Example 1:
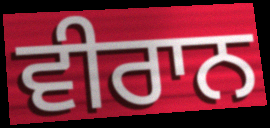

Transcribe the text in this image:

ਵੀਰਾਨ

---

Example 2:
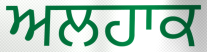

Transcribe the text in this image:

ਅਲਹਾਕ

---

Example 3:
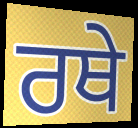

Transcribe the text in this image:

ਰਥੇ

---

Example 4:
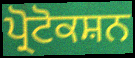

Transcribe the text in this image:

ਪ੍ਰੋਟੋਕਸ਼ਨ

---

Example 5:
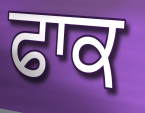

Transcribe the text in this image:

ਫਾਕ